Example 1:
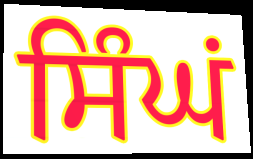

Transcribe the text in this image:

ਸਿੰਘਂ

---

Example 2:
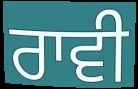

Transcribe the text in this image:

ਰਾਵੀ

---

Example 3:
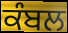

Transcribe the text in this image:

ਕੰਬਲ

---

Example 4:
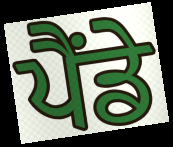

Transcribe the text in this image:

ਪੈਂਡੇ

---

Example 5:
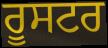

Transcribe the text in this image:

ਰੂਸਟਰ